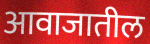
आवाजातील